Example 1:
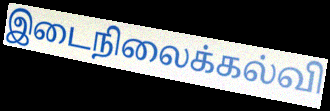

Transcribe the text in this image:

இடைநிலைக்கல்வி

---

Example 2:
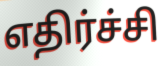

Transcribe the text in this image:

எதிர்ச்சி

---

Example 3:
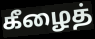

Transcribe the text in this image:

கீழைத்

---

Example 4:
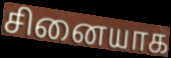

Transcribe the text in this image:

சினையாக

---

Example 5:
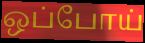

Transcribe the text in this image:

ஒப்போய்